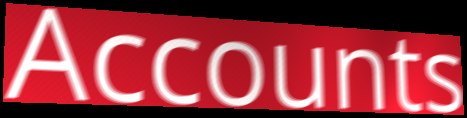
Accounts